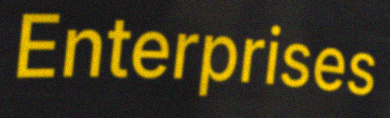
Enterprises